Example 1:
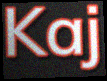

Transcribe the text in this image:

Kaj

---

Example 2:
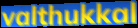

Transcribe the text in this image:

valthukkal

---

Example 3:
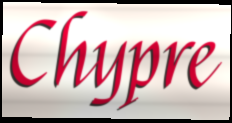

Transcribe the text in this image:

Chypre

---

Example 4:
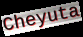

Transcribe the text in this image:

Cheyuta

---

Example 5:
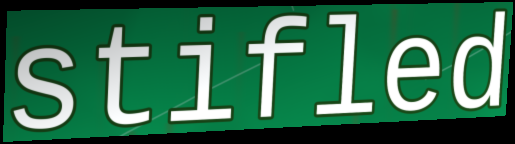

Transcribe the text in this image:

stifled